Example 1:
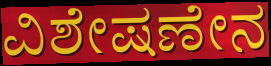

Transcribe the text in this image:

ವಿಶೇಷಣೇನ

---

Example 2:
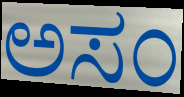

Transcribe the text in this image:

ಅಸಂ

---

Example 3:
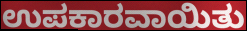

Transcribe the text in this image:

ಉಪಕಾರವಾಯಿತು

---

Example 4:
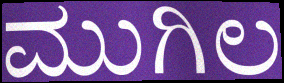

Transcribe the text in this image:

ಮುಗಿಲ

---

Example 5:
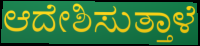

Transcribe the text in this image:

ಆದೇಶಿಸುತ್ತಾಳೆ